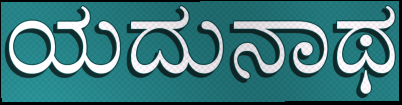
ಯದುನಾಥ